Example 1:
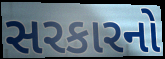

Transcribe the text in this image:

સરકારનો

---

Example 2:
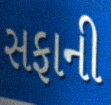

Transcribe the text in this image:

સફાની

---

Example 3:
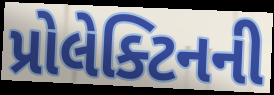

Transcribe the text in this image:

પ્રોલેક્ટિનની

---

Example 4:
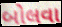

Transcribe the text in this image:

બોલવા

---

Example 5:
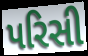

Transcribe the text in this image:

પરિસી